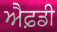
ਐਫ਼ਡੀ